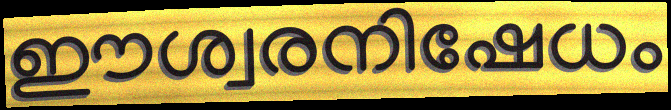
ഈശ്വരനിഷേധം